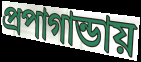
প্রপাগান্ডায়